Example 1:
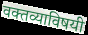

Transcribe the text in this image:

वक्तव्याविषयी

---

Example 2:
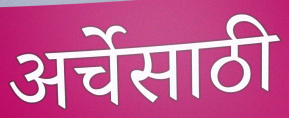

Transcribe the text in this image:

अर्चेसाठी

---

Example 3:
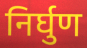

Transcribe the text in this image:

निर्घुण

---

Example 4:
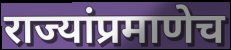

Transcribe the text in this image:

राज्यांप्रमाणेच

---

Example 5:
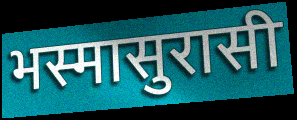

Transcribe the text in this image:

भस्मासुरासी